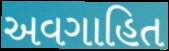
અવગાહિત